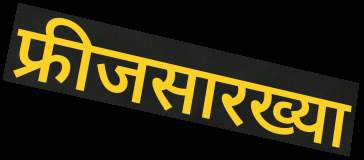
फ्रीजसारख्या